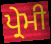
ਪ੍ਰੇਮੀ